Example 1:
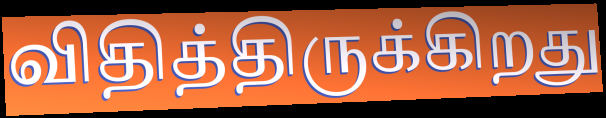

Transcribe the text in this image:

விதித்திருக்கிறது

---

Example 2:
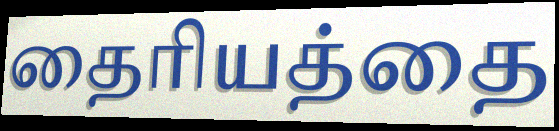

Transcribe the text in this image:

தைரியத்தை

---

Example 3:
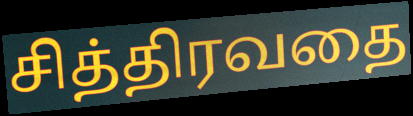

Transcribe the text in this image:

சித்திரவதை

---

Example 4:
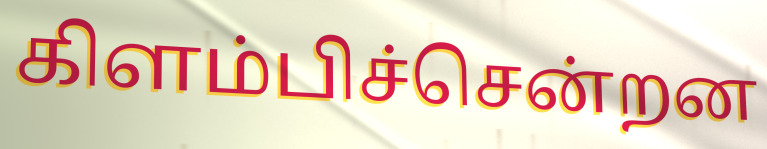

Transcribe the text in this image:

கிளம்பிச்சென்றன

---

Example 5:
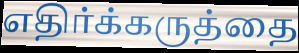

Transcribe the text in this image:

எதிர்க்கருத்தை